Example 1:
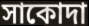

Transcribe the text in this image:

সাকোদা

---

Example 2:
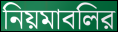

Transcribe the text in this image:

নিয়মাবলির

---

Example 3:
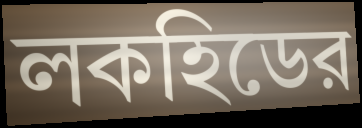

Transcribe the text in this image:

লকহিডের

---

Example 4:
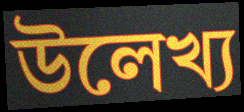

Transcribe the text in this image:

উলেখ্য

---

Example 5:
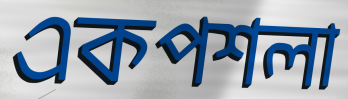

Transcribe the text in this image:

একপশলা